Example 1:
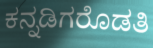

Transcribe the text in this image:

ಕನ್ನಡಿಗರೊಡತಿ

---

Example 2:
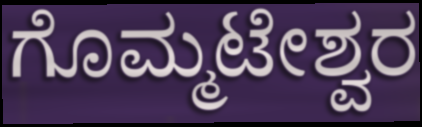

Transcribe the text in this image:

ಗೊಮ್ಮಟೇಶ್ವರ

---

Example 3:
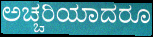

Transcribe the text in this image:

ಅಚ್ಚರಿಯಾದರೂ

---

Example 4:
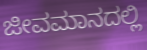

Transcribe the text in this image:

ಜೀವಮಾನದಲ್ಲಿ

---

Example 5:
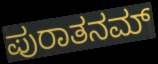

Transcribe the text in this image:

ಪುರಾತನಮ್